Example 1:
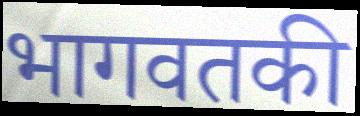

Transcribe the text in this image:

भागवतकी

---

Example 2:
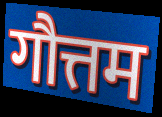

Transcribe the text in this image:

गौत्तम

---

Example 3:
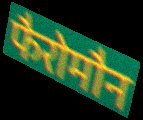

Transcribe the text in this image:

फैरोमौन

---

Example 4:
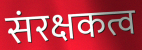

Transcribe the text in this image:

संरक्षकत्व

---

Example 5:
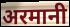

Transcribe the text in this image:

अरमानी